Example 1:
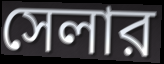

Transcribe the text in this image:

সেলার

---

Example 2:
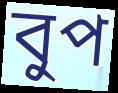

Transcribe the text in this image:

বুপ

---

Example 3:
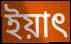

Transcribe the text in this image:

ইয়াৎ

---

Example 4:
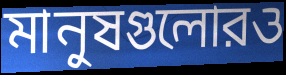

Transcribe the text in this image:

মানুষগুলোরও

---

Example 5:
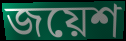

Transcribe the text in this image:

জয়েশ